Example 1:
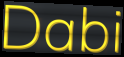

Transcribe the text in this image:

Dabi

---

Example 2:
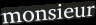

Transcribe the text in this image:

monsieur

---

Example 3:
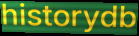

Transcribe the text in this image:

historydb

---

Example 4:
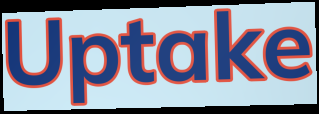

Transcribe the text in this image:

Uptake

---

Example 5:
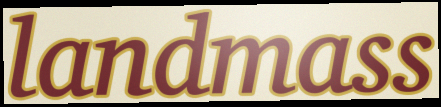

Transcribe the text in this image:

landmass